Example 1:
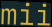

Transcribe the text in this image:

mii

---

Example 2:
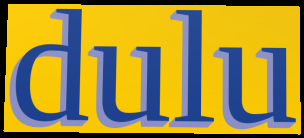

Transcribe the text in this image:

dulu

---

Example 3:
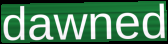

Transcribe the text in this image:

dawned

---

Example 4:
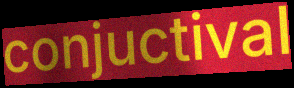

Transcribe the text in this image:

conjuctival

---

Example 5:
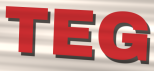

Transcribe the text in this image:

TEG